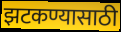
झटकण्यासाठी